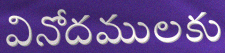
వినోదములకు